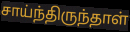
சாய்ந்திருந்தாள்